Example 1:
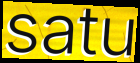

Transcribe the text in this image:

satu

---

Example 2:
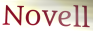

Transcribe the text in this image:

Novell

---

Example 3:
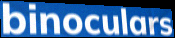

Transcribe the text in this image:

binoculars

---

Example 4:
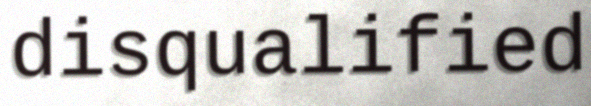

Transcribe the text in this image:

disqualified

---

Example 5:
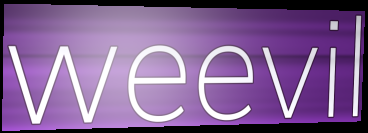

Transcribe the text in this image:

weevil